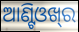
ଆଣ୍ଟିଓଖ୍‍ର